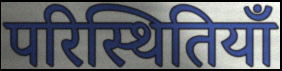
परिस्थितियाँ